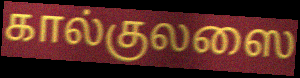
கால்குலஸை